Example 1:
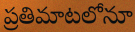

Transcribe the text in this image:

ప్రతిమాటలోనూ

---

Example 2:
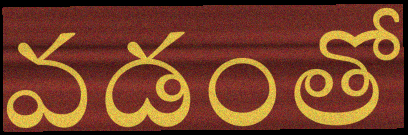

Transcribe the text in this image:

వడంతో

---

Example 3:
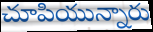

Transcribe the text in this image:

చూపియున్నారు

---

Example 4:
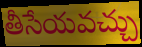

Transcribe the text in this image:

తీసేయవచ్చు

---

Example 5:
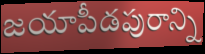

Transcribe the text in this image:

జయాపీడపురాన్ని